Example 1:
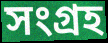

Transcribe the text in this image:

সংগ্ৰহ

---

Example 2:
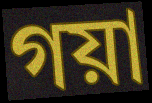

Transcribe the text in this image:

গয়া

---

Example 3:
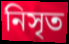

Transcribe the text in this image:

নিসৃত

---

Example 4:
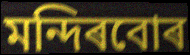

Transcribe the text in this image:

মন্দিৰবোৰ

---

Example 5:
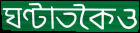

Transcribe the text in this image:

ঘণ্টাতকৈও